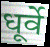
धूर्वे